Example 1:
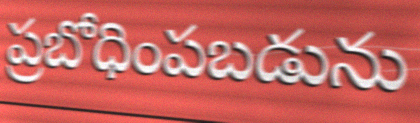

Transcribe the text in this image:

ప్రబోధింపబడును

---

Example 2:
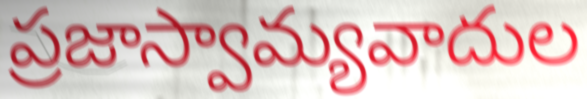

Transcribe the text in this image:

ప్రజాస్వామ్యవాదుల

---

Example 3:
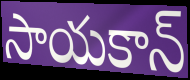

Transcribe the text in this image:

సాయకాన్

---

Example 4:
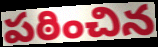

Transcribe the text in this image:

పఠించిన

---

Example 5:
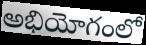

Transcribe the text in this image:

అభియోగంలో